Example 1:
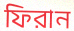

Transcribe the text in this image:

ফিরান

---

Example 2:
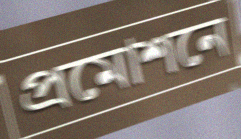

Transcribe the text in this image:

প্রমোশনে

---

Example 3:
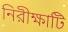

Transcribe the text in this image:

নিরীক্ষাটি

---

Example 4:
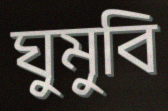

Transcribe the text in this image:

ঘুমুবি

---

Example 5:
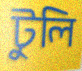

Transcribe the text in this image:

টুলি